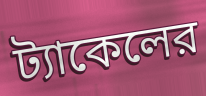
ট্যাকেলের